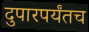
दुपारपर्यंतच